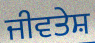
ਜੀਵਤੇਸ਼